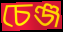
চেঞ্জ